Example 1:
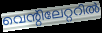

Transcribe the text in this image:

വെന്റിലേറ്ററിൽ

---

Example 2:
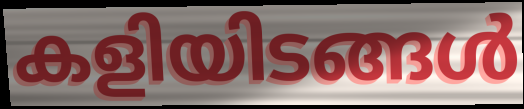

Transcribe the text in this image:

കളിയിടങ്ങൾ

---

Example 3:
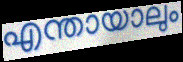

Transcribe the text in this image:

എന്തായാലും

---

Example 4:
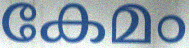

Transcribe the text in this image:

കേമം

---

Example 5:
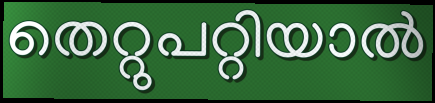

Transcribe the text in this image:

തെറ്റുപറ്റിയാൽ